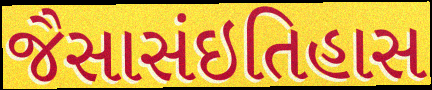
જૈસાસંઇતિહાસ